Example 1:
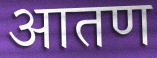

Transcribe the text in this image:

आतण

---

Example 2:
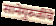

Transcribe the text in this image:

सानेगुरुजींचे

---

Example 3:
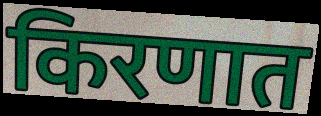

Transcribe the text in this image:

किरणात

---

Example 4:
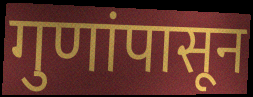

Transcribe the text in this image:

गुणांपासून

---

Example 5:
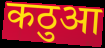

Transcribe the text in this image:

कठुआ